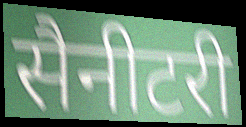
सैनीटरी